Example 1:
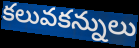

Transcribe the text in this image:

కలువకన్నులు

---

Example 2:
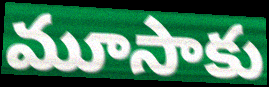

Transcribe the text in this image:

మూసాకు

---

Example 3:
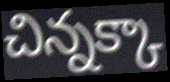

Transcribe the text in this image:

చిన్నక్కా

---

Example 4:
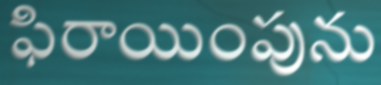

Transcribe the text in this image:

ఫిరాయింపును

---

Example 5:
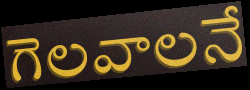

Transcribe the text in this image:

గెలవాలనే